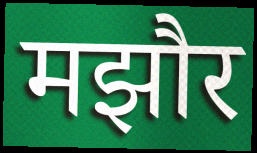
मझौर